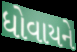
ધોવાયને